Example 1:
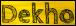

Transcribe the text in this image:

Dekho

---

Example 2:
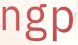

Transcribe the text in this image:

ngp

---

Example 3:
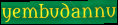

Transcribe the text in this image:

yembudannu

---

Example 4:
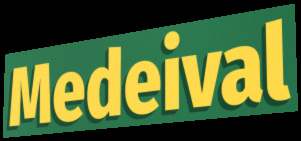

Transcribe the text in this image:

Medeival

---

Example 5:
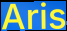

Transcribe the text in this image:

Aris